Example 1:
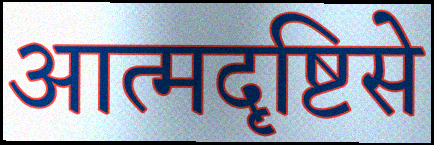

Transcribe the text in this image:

आत्मदृष्टिसे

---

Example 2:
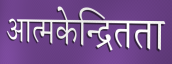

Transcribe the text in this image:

आत्मकेन्द्रितता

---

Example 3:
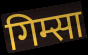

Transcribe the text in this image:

गिम्सा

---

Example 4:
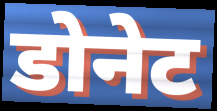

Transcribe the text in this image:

डोनेट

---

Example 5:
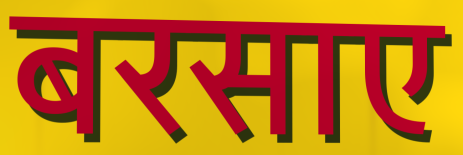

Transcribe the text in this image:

बरसाए